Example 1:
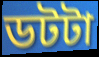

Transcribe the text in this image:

ডটটা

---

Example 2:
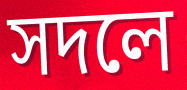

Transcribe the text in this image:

সদলে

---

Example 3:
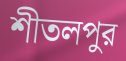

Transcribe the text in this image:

শীতলপুর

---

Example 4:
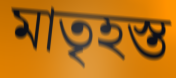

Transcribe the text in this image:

মাতৃহস্ত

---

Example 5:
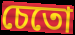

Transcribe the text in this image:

চেতো